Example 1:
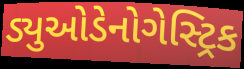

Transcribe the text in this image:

ડ્યુઓડેનોગેસ્ટ્રિક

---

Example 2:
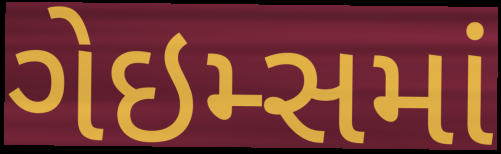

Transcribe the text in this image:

ગેઇમ્સમાં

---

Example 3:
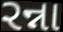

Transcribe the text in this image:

રન્ના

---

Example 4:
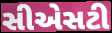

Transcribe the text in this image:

સીએસટી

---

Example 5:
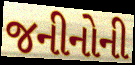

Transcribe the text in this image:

જનીનોની